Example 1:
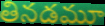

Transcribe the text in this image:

తినడమూ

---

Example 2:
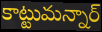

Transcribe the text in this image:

కాట్టుమన్నార్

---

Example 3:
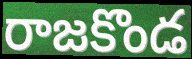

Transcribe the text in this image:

రాజకొండ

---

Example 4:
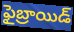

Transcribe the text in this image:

ఫైబ్రాయిడ్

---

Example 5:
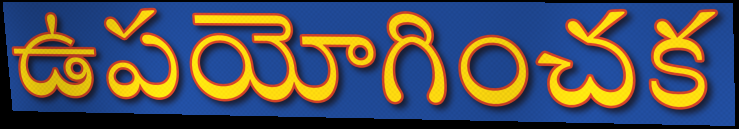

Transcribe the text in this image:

ఉపయోగించక